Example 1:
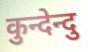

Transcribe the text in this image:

कुन्देन्दु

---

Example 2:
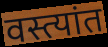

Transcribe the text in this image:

वस्त्यांत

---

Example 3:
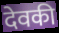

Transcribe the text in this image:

देवकी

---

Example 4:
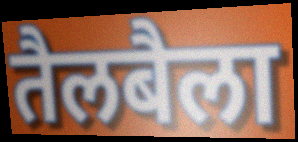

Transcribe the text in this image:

तैलबैला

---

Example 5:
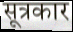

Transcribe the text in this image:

सूत्रकार